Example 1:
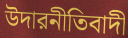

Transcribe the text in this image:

উদারনীতিবাদী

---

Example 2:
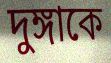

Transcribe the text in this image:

দুঙ্গাকে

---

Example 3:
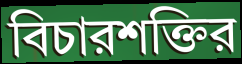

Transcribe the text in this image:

বিচারশক্তির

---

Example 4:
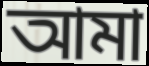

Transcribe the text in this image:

আমা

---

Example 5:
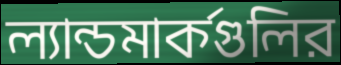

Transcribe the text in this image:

ল্যান্ডমার্কগুলির